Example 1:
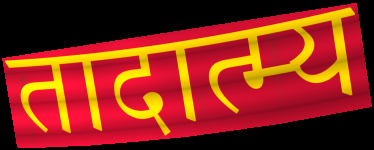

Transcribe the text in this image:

तादात्म्य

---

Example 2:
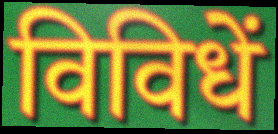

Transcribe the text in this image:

विविधें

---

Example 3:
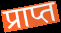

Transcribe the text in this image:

प्राप्‍त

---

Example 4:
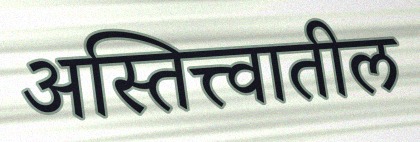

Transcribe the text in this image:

अस्तित्त्वातील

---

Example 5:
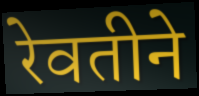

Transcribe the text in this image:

रेवतीने